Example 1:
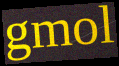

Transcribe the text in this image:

gmol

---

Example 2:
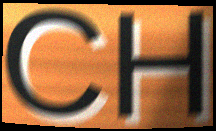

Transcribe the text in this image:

CH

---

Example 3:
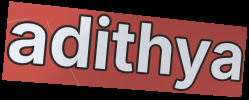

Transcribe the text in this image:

adithya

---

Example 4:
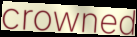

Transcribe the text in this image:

crowned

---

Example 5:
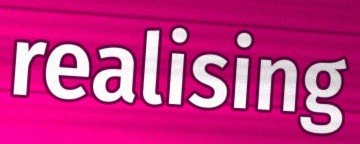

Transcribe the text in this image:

realising